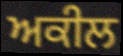
ਅਕੀਲ